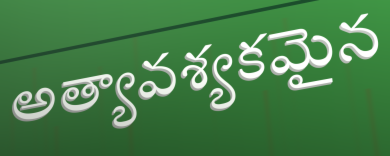
అత్యావశ్యకమైన